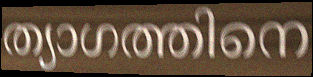
ത്യാഗത്തിനെ